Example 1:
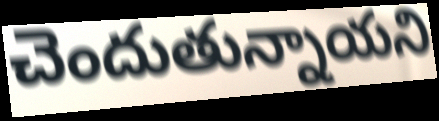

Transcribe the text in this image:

చెందుతున్నాయని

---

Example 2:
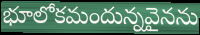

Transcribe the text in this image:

భూలోకమందున్నవైనను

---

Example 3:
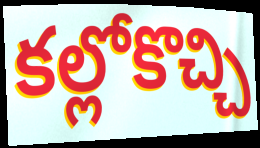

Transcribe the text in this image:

కల్లోకొచ్చి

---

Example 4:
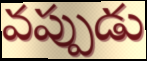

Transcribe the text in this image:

వప్పుడు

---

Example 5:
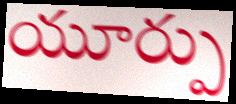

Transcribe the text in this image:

యూర్పు